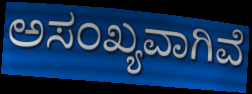
ಅಸಂಖ್ಯವಾಗಿವೆ